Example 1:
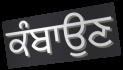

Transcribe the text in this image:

ਕੰਬਾਉਣ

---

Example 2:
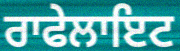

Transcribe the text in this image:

ਰਾਫੇਲਾਇਟ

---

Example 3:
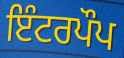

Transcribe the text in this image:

ਇੰਟਰਪੌਪ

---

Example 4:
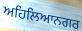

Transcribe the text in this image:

ਅਹਿਲਿਆਨਗਰ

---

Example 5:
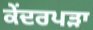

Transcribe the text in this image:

ਕੇਂਦਰਪੜਾ